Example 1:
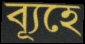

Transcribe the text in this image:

ব্যূহে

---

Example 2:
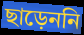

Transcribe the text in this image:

ছাড়েননি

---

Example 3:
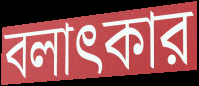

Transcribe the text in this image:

বলাৎকার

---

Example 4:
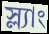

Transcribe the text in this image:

স্ল্যাং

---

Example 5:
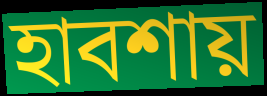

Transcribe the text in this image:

হাবশায়